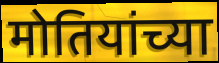
मोतियांच्या